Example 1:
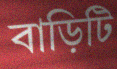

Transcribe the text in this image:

বাড়িটি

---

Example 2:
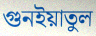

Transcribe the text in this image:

গুনইয়াতুল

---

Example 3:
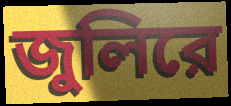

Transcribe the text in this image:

জুলিরে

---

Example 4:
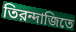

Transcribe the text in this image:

তিরন্দাজিতে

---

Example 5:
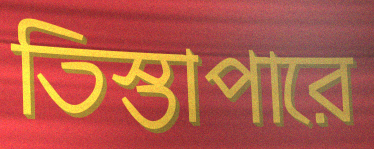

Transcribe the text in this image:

তিস্তাপারে